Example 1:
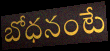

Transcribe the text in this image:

బోధనంటే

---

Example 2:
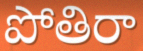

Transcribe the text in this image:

పోతిరా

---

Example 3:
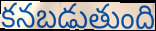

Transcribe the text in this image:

కనబడుతుంది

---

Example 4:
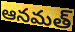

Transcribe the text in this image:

ఆనమత్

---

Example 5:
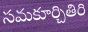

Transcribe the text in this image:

సమకూర్చితిరి